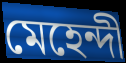
মেহেন্দী